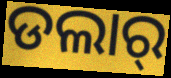
ଡଲାର୍